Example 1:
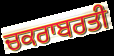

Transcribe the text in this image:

ਚਕਰਾਬਰਤੀ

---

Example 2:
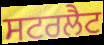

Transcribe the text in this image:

ਸਟਰਲੈਟ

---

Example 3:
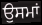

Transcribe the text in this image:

ਉਸਮਾਂ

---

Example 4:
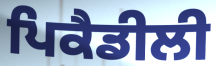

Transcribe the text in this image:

ਪਿਕੈਡੀਲੀ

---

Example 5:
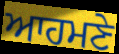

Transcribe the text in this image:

ਆਹਮਣੇ